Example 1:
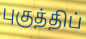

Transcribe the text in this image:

புகுத்திப்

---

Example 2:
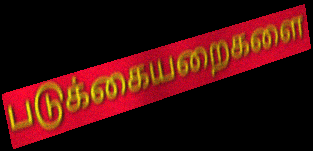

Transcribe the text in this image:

படுக்கையறைகளை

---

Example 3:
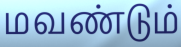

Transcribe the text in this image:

மவண்டும்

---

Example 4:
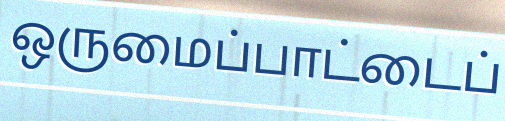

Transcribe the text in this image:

ஒருமைப்பாட்டைப்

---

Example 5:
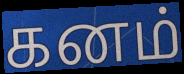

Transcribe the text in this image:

கனம்